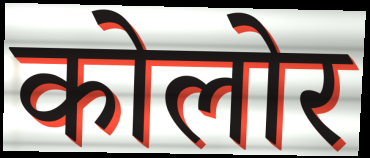
कोलोर